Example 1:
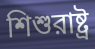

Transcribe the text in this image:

শিশুরাষ্ট্র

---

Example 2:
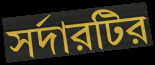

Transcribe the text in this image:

সর্দারটির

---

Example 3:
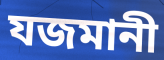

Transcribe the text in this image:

যজমানী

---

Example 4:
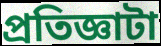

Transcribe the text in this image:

প্রতিজ্ঞাটা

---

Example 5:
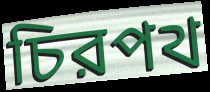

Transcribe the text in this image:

চিরপথ